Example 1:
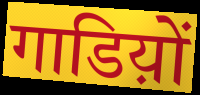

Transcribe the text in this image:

गाडिय़ों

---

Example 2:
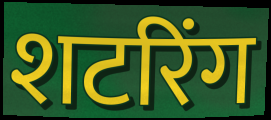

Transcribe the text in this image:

शटरिंग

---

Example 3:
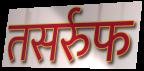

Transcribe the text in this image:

तसर्रुफ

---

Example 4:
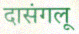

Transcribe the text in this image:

दासंगलू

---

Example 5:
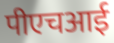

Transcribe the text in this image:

पीएचआई